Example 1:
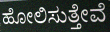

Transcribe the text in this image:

ಹೋಲಿಸುತ್ತೇವೆ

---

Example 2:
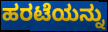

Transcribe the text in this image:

ಹರಟೆಯನ್ನು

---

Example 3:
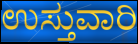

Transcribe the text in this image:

ಉಸ್ತುವಾರಿ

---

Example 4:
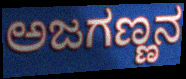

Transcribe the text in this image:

ಅಜಗಣ್ಣನ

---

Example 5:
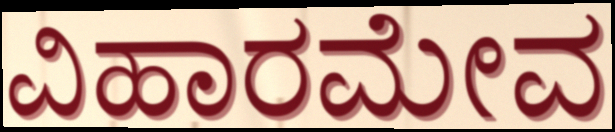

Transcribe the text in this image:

ವಿಹಾರಮೇವ